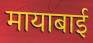
मायाबाई